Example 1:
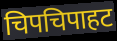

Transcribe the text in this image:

चिपचिपाहट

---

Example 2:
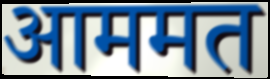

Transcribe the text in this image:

आममत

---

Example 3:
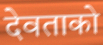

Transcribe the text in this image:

देवताको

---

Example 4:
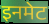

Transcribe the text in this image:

इनमेट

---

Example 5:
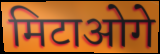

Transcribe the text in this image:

मिटाओगे